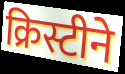
क्रिस्टीने